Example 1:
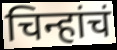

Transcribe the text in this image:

चिन्हांचं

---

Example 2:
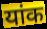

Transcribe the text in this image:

यांक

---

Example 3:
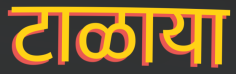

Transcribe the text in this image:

टाळाया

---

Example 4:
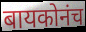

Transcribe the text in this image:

बायकोनंच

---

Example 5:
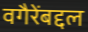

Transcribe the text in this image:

वगैरेंबद्दल